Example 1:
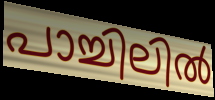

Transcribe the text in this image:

പാച്ചിലിൽ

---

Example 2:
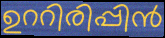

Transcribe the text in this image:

ഉററിരിപ്പിൻ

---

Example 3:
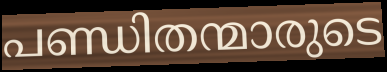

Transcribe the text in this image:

പണ്ഡിതന്മാരുടെ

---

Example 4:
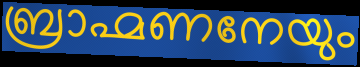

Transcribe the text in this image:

ബ്രാഹ്മണനേയും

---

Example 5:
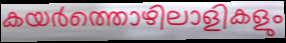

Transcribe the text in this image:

കയർത്തൊഴിലാളികളും